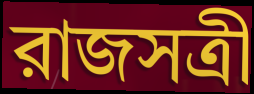
রাজসত্রী